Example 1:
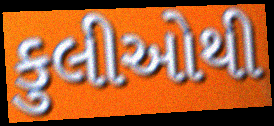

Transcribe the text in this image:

કુલીઓથી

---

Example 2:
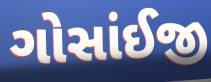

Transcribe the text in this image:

ગોસાંઈજી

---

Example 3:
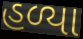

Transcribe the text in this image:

હળ્યા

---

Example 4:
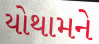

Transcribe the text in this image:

યોથામને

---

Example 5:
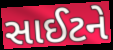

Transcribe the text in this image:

સાઈટને